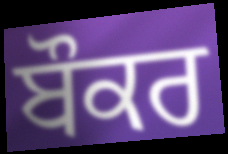
ਬੌਕਰ